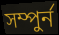
সম্পুৰ্ন